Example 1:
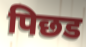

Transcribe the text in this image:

पिछड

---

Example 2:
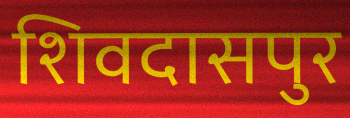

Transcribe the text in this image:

शिवदासपुर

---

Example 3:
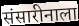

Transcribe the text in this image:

संसारीनाला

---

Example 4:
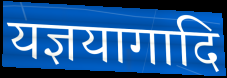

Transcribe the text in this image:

यज्ञयागादि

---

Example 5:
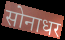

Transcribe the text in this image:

सोनाधर